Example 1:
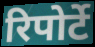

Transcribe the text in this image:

रिपोर्टे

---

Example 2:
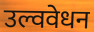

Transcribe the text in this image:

उल्ववेधन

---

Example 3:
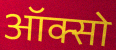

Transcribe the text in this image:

ऑक्सो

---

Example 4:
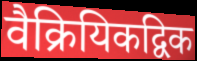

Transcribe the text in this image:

वैक्रियिकद्विक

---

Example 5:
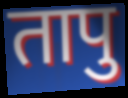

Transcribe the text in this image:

तापु